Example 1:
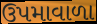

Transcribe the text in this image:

ઉપમાવાળા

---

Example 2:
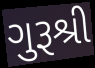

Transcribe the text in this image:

ગુરૂશ્રી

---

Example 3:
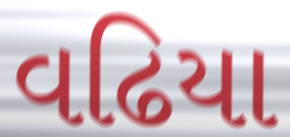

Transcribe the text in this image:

વઢિયા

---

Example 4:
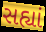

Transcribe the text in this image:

સહ્યાં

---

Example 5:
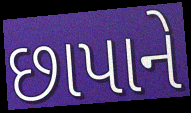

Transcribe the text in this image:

છાપાને